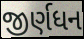
જીર્ણધન